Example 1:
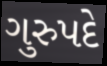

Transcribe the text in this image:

ગુરુપદે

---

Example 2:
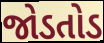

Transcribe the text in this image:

જોડતોડ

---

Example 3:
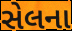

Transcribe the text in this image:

સેલના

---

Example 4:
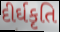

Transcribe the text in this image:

દીર્ઘકૃતિ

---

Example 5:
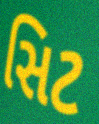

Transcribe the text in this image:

સિટ